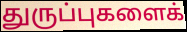
துருப்புகளைக்